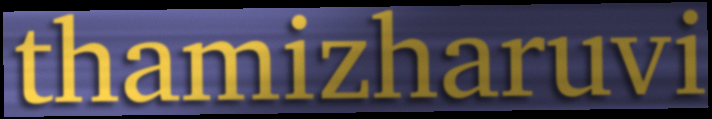
thamizharuvi